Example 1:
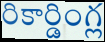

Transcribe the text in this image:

రికార్డింగ్ల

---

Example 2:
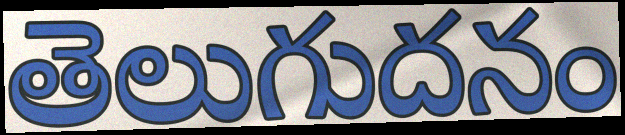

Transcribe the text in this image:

తెలుగుదనం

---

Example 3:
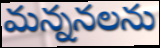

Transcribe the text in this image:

మన్ననలను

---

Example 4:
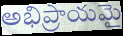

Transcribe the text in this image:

అభిప్రాయమై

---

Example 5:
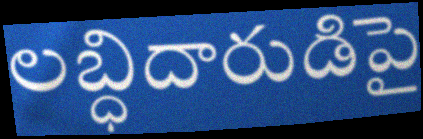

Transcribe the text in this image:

లబ్ధిదారుడిపై